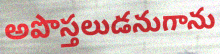
అపొస్తలుడనుగాను